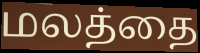
மலத்தை